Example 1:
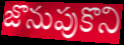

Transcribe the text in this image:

జొనుపుకొని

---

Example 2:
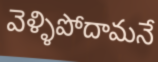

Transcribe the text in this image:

వెళ్ళిపోదామనే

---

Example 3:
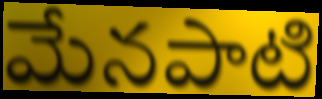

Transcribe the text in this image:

మేనపాటి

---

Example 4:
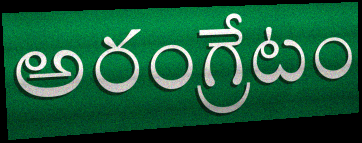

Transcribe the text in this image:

అరంగ్రేటం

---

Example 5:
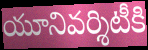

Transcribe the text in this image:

యూనివర్శిటీకి